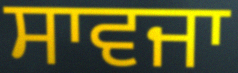
ਸਾਵਜਾ